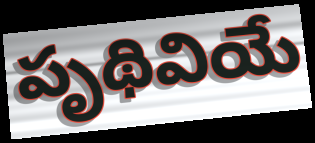
పృథివియే